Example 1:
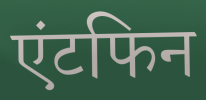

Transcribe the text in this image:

एंटफिन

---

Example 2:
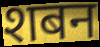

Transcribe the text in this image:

शबन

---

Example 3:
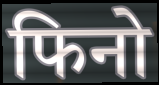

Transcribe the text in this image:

फिनो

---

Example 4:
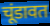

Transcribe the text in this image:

चूंडावत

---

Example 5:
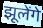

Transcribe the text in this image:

झूलेंगे